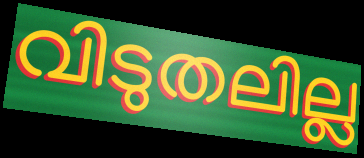
വിടുതലില്ല